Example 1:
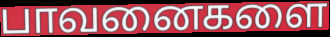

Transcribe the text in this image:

பாவனைகளை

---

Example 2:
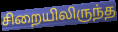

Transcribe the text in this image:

சிறையிலிருந்த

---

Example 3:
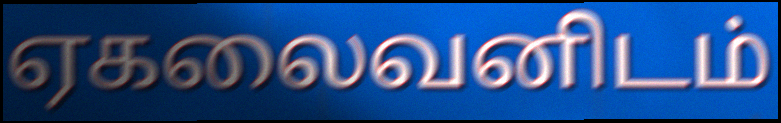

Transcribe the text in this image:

ஏகலைவனிடம்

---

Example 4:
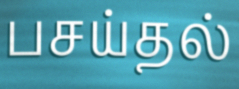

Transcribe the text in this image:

பசய்தல்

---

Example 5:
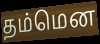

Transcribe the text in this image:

தம்மென